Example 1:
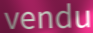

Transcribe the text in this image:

vendu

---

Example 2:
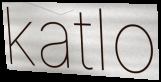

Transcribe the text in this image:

katlo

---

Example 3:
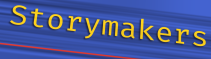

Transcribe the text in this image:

Storymakers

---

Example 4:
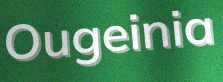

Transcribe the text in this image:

Ougeinia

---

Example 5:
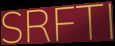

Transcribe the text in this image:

SRFTI